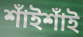
শাঁইশাঁই